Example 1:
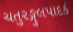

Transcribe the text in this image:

ચતુરઙ્ગુલપાદકં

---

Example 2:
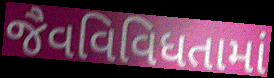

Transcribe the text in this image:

જૈવવિવિધતામાં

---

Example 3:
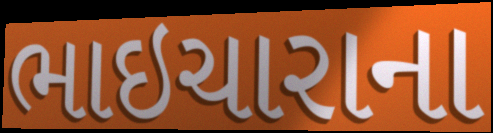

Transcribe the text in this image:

ભાઇચારાના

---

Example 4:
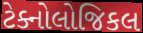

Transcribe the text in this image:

ટેક્નોલોજિકલ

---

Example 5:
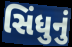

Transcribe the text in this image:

સિંધુનું